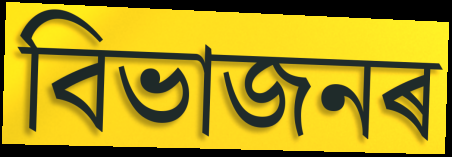
বিভাজনৰ